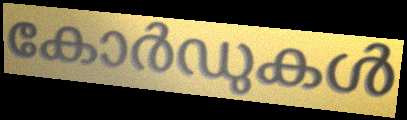
കോർഡുകൾ